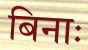
बिनाः